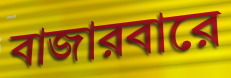
বাজারবারে